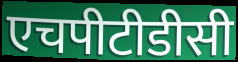
एचपीटीडीसी